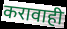
करावाही